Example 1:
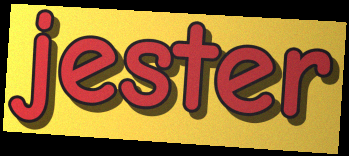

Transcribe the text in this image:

jester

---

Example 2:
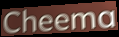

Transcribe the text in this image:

Cheema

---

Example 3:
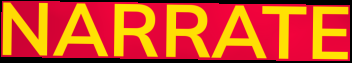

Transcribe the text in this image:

NARRATE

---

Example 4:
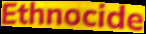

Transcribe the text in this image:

Ethnocide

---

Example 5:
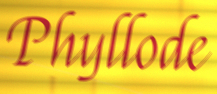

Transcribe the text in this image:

Phyllode